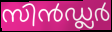
സിൻഡ്ലർ